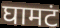
घामटं